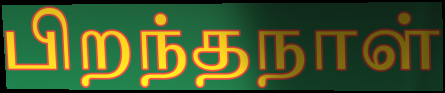
பிறந்தநாள்